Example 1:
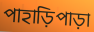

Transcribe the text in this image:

পাহাড়িপাড়া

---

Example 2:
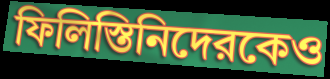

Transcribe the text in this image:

ফিলিস্তিনিদেরকেও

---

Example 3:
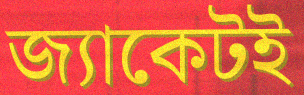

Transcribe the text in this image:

জ্যাকেটই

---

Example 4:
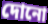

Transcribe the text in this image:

দোনো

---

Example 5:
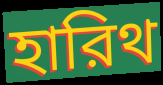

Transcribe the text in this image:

হারিথ